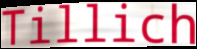
Tillich